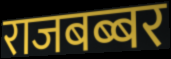
राजबब्बर